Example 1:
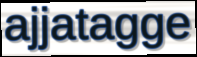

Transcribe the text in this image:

ajjatagge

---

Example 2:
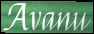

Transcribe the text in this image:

Avanu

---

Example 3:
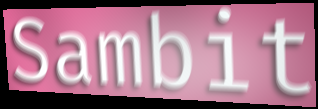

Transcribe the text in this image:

Sambit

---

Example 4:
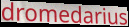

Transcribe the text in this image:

dromedarius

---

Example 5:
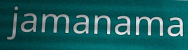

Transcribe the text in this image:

jamanama